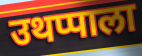
उथप्पाला